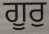
ਗੂਰੁ